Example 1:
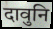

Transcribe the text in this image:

दावुनि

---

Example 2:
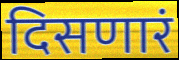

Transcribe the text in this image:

दिसणारं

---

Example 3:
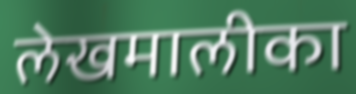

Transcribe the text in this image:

लेखमालीका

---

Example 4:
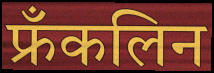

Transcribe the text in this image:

फ्रँकलिन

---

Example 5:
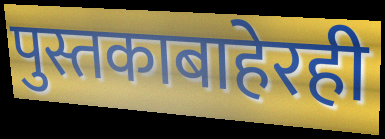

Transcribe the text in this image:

पुस्तकाबाहेरही